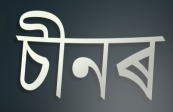
চীনৰ